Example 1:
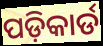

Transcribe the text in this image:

ପଡ଼ିକାର୍ଡ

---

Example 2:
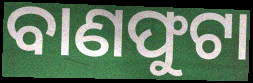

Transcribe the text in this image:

ବାଣଫୁଟା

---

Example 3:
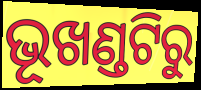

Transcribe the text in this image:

ଭୂଖଣ୍ଡଟିରୁ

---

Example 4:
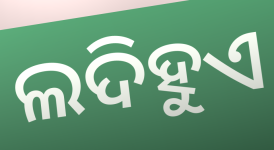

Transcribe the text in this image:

ଲଦିହୁଏ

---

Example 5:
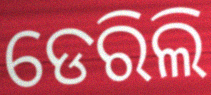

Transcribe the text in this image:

ଡେରିଲି